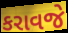
કરાવજે